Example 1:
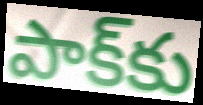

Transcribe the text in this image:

పాక్‌కు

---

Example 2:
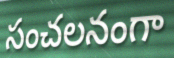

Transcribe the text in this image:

సంచలనంగా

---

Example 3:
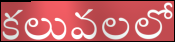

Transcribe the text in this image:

కలువలలో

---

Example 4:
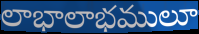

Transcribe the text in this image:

లాభాలాభములూ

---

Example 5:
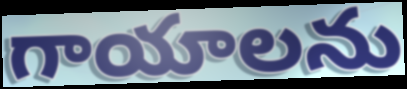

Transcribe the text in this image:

గాయాలను